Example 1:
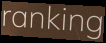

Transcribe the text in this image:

ranking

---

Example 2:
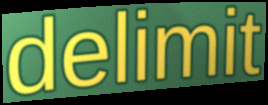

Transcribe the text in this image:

delimit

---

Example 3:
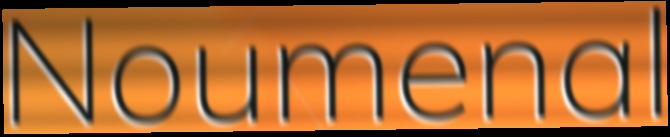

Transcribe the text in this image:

Noumenal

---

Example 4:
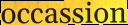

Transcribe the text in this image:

occassion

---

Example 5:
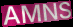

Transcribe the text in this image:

AMNS